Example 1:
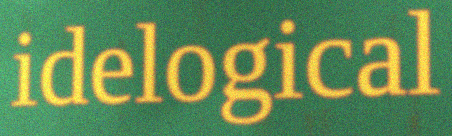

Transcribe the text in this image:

idelogical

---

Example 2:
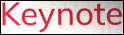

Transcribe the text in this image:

Keynote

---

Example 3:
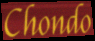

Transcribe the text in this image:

Chondo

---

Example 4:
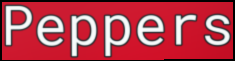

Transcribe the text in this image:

Peppers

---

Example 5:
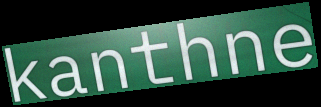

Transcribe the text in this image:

kanthne